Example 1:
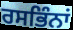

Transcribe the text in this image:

ਰਸਭਿੰਨਾਂ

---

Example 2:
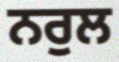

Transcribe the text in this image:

ਨਰੁਲ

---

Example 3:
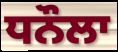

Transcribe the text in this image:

ਧਨੌਲਾ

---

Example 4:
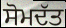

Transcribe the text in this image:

ਸੋਮਦੱਤ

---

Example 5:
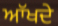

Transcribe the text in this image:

ਆੱਖਦੇ